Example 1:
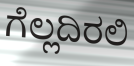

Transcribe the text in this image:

ಗೆಲ್ಲದಿರಲಿ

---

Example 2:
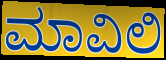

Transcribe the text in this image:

ಮಾವಿಲಿ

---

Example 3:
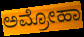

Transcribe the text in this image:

ಅಮ್ರೋಹಾ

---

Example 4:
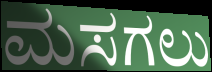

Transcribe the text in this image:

ಮಸಗಲು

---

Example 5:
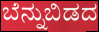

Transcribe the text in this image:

ಬೆನ್ನುಬಿಡದ